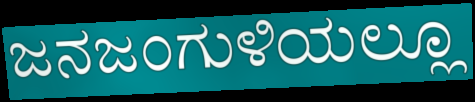
ಜನಜಂಗುಳಿಯಲ್ಲೂ